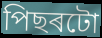
পিছৰটো